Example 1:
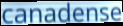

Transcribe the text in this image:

canadense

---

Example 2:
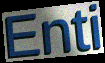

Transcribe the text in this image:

Enti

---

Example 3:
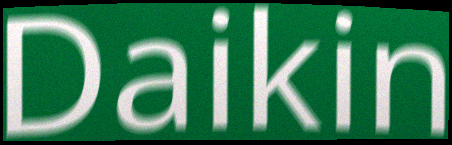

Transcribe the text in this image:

Daikin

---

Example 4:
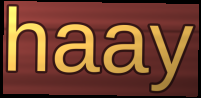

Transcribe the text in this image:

haay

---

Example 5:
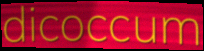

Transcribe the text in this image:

dicoccum